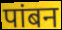
पांबन